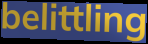
belittling